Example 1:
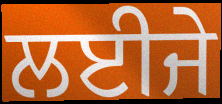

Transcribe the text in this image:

ਲਈਜੇ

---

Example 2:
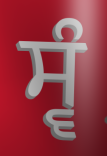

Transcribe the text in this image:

ਸ੍ਵੰ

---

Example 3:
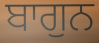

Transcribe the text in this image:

ਬਾਗੁਨ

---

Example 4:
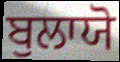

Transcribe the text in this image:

ਬੁਲਾਯੋ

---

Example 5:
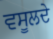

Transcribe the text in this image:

ਵਸੂਲਦੇ